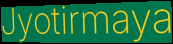
Jyotirmaya